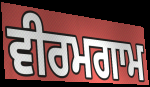
ਵੀਰਮਗਾਮ